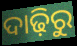
ଦାଢ଼ିରୁ